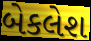
બેકલેશ